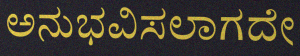
ಅನುಭವಿಸಲಾಗದೇ